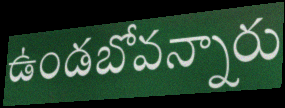
ఉండబోవన్నారు